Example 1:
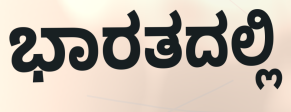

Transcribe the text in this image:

ಭಾರತದಲ್ಲಿ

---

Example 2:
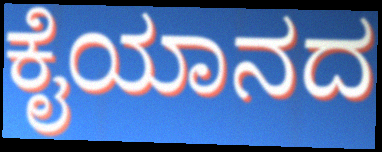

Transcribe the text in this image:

ಕೈಯಾನದ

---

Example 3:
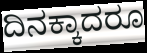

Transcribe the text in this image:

ದಿನಕ್ಕಾದರೂ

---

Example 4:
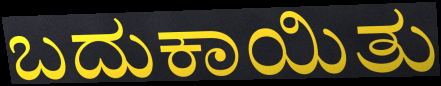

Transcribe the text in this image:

ಬದುಕಾಯಿತು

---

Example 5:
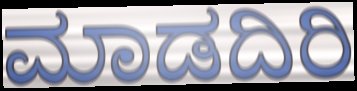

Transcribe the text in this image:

ಮಾಡದಿರಿ